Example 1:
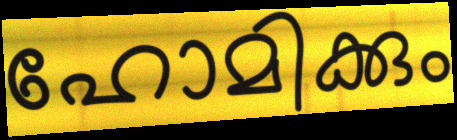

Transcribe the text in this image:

ഹോമിക്കും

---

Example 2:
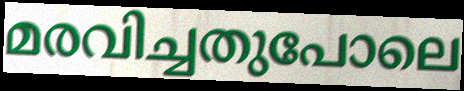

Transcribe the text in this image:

മരവിച്ചതുപോലെ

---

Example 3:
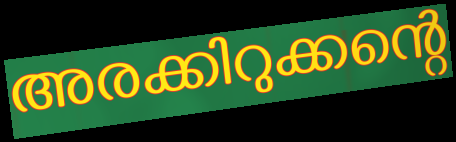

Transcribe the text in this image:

അരക്കിറുക്കന്റെ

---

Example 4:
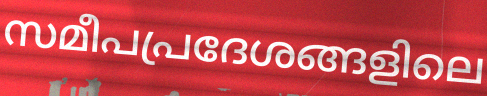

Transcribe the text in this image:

സമീപപ്രദേശങ്ങളിലെ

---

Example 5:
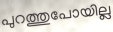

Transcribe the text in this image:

പുറത്തുപോയില്ല